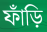
ফাঁড়ি